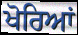
ਖੋਰਿਆਂ